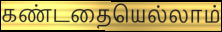
கண்டதையெல்லாம்